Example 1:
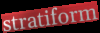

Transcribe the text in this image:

stratiform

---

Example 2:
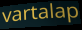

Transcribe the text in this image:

vartalap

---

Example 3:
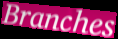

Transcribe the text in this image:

Branches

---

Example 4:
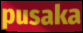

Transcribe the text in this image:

pusaka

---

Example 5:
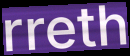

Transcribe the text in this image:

rreth